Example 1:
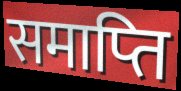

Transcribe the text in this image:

समाप्‍ति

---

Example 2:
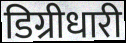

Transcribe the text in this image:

डिग्रीधारी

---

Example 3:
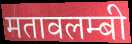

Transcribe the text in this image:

मतावलम्बी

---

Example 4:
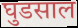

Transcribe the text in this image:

घुडसाल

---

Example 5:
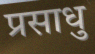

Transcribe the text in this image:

प्रसाधु